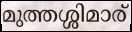
മുത്തശ്ശിമാര്